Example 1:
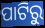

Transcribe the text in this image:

ପାଟିରୁ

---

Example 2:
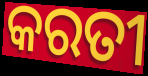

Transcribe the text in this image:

କରତୀ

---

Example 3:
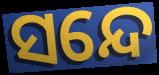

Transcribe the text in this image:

ସନ୍ଦେ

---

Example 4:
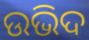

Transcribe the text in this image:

ଉଭିଦ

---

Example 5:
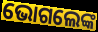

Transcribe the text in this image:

ଭୋଗଲେଙ୍କ